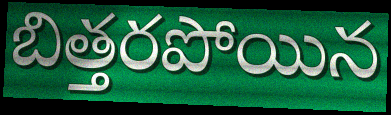
బిత్తరపోయిన